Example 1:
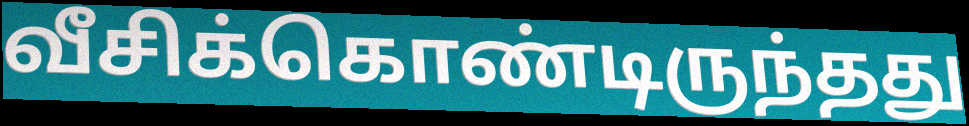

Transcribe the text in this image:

வீசிக்கொண்டிருந்தது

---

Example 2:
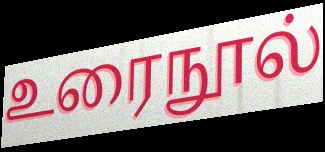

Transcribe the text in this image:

உரைநூல்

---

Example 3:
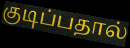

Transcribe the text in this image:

குடிப்பதால்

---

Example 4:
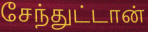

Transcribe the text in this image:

சேந்துட்டான்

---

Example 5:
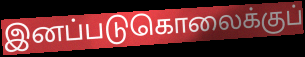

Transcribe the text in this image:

இனப்படுகொலைக்குப்